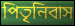
পিতৃনিবাস